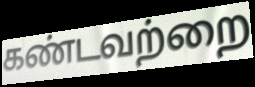
கண்டவற்றை